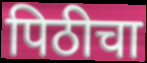
पिठीचा